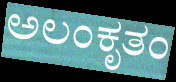
ಅಲಂಕೃತಂ